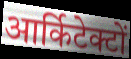
आर्किटेक्टों